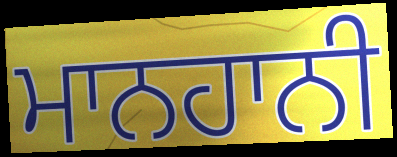
ਮਾਨਹਾਨੀ